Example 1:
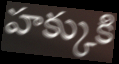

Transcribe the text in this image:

హక్కుకి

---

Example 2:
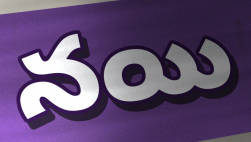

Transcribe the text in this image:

నయి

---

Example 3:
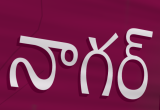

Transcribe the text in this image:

నాగర్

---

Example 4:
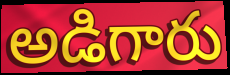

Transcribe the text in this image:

అడిగారు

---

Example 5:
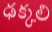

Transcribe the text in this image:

ఢక్కలి